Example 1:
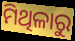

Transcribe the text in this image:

ମିଥିଳାରୁ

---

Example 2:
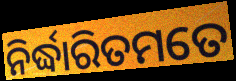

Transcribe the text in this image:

ନିର୍ଦ୍ଧାରିତମତେ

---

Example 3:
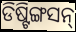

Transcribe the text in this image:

ଡିଷ୍ଟିଙ୍ଗସନ୍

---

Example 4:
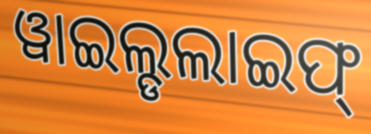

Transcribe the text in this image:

ୱାଇଲ୍ଡଲାଇଫ୍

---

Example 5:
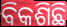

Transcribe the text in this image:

ବିକଶିଛି